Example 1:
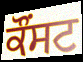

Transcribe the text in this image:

ਕੌਂਸਟ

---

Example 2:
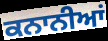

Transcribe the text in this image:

ਕਨਾਨੀਆਂ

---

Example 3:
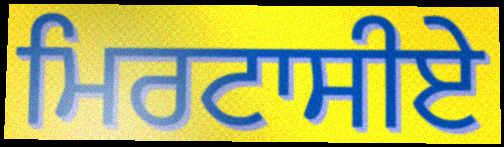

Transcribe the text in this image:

ਮਿਰਟਾਸੀਏ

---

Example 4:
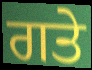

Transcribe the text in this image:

ਗਤੇ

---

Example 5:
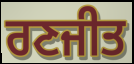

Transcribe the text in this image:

ਰਣਜੀਤ